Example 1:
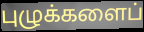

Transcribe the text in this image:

புழுக்களைப்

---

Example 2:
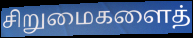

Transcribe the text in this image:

சிறுமைகளைத்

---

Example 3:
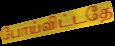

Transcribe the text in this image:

போய்விட்டதே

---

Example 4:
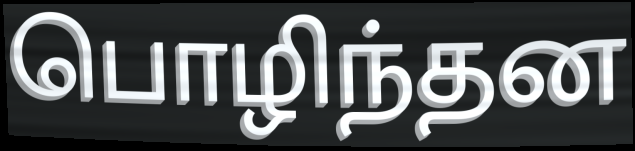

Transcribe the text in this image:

பொழிந்தன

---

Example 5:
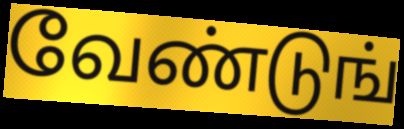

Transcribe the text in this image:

வேண்டுங்